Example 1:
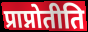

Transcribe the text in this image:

प्राप्नोतीति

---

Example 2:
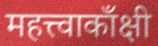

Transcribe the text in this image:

महत्त्वाकाँक्षी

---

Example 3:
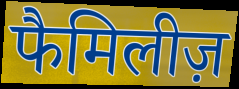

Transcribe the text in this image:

फैमिलीज़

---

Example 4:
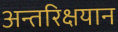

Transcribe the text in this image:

अन्तरिक्षयान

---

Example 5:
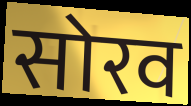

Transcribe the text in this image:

सोरव